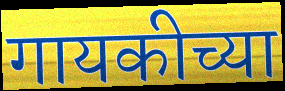
गायकीच्या